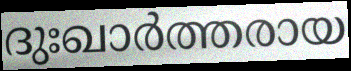
ദുഃഖാർത്തരായ